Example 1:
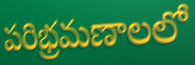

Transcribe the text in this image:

పరిభ్రమణాలలో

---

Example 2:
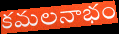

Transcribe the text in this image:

కమలనాభం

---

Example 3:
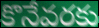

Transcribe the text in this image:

కొనేవరకు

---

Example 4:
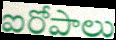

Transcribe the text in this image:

ఐరోపాలు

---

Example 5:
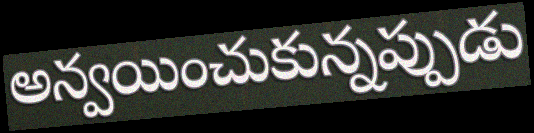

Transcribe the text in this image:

అన్వయించుకున్నప్పుడు